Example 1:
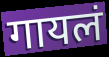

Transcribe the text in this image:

गायलं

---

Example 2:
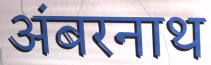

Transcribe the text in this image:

अंबरनाथ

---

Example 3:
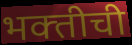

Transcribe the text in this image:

भक्‍तीची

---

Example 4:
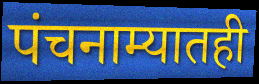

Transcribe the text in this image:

पंचनाम्यातही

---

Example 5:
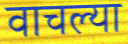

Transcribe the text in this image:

वाचल्या